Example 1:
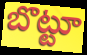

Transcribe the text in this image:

బొట్టూ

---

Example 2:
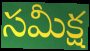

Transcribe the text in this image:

సమీక్ష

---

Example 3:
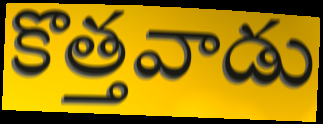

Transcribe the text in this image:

కొత్తవాడు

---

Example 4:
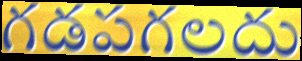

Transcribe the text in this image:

గడపగలదు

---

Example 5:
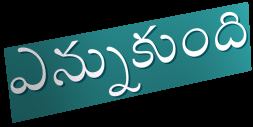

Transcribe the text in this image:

ఎన్నుకుంది